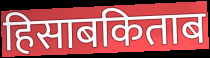
हिसाबकिताब